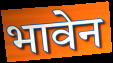
भावेन